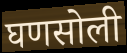
घणसोली